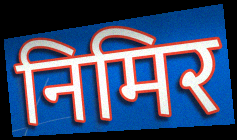
निमिर